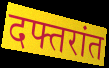
दफ्तरांत